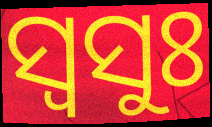
ସ୍ଵସୁଃ